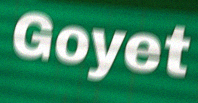
Goyet